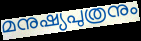
മനുഷ്യപുത്രനും